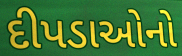
દીપડાઓનો